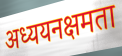
अध्ययनक्षमता